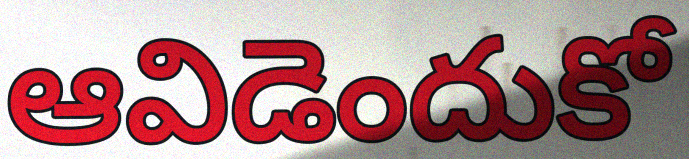
ఆవిడెందుకో